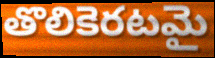
తొలికెరటమై